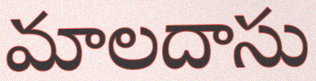
మాలదాసు